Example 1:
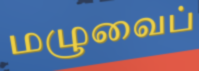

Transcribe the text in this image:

மழுவைப்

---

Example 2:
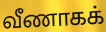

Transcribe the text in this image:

வீணாகக்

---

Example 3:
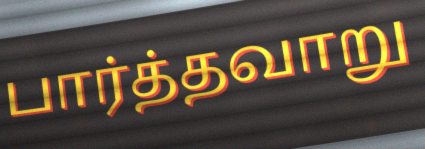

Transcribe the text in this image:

பார்த்தவாறு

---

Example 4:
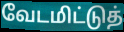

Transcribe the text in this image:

வேடமிட்டுத்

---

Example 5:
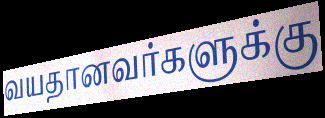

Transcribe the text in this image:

வயதானவர்களுக்கு